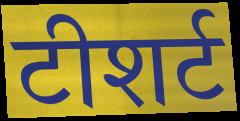
टीशर्ट